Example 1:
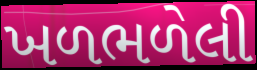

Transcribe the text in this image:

ખળભળેલી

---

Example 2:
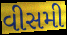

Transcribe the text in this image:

વીસમી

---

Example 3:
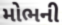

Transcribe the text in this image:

મોભની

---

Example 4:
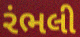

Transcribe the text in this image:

રંભલી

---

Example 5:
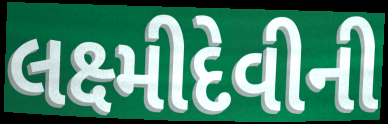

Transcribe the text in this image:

લક્ષ્મીદેવીની